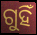
ଗୁହିଁ